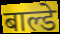
बाल्डे